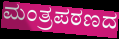
ಮಂತ್ರಪಠಣದ